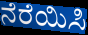
ನೆರೆಯಿಸಿ